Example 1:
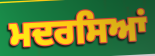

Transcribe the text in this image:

ਮਦਰਸਿਆਂ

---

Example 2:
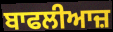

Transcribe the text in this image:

ਬਾਫਲੀਆਜ਼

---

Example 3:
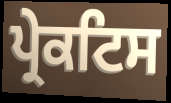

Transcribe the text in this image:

ਪ੍ਰੇਕਟਿਸ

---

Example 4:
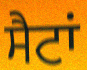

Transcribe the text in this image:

ਸੈਟਾਂ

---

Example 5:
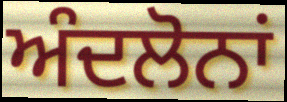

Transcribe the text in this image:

ਅੰਦਲੋਨਾਂ